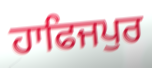
ਹਾਫਿਜਪੁਰ